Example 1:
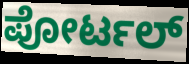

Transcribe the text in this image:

ಪೋರ್ಟಲ್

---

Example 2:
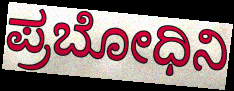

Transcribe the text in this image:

ಪ್ರಬೋಧಿನಿ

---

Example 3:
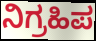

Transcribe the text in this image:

ನಿಗ್ರಹಿಪ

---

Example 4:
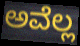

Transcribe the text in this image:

ಅವೆಲ್ಲ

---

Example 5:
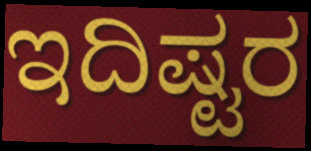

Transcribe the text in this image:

ಇದಿಷ್ಟರ